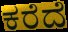
ಕರೆದೆ